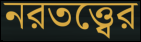
নরতত্ত্বের